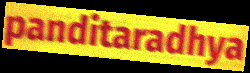
panditaradhya